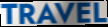
TRAVEL